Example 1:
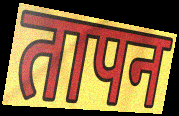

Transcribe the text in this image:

तापन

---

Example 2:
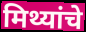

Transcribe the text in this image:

मिथ्यांचे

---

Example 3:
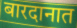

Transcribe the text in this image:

बारदानात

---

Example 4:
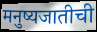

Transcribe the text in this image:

मनुष्यजातीची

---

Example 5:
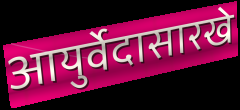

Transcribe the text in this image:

आयुर्वेदासारखे